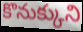
కొనుక్కుని